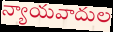
న్యాయవాదుల